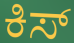
ಕಿಸ್